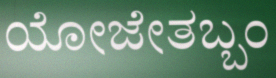
ಯೋಜೇತಬ್ಬಂ